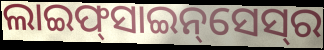
ଲାଇଫ୍‌ସାଇନ୍‌ସେସ୍‌ର